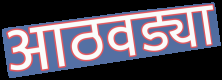
आठवड्या